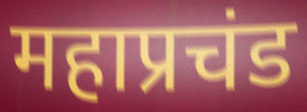
महाप्रचंड